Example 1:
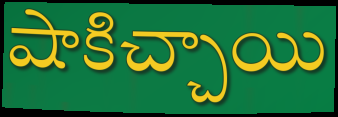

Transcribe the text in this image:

షాకిచ్చాయి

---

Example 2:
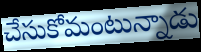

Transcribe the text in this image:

చేసుకోమంటున్నాడు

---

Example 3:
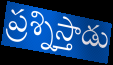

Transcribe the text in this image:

ప్రశ్నిస్తాడు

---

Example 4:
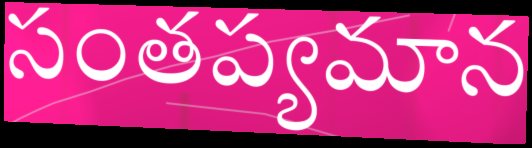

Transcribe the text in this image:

సంతప్యమాన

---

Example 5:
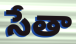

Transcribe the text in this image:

సేతా